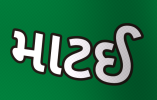
માટઈ